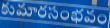
కుమారసంభవం